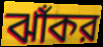
ঝাঁকর